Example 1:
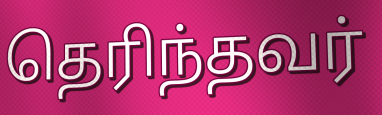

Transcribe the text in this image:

தெரிந்தவர்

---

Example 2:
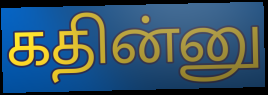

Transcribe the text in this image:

கதின்னு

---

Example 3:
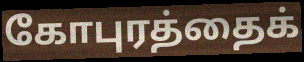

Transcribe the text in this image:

கோபுரத்தைக்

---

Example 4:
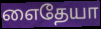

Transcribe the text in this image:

எைதேயா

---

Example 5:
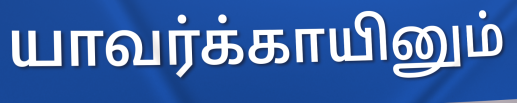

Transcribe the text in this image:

யாவர்க்காயினும்